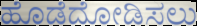
ಹೊಡೆದೋಡಿಸಲು